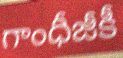
గాంధీజీకీ